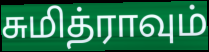
சுமித்ராவும்